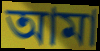
আমা